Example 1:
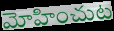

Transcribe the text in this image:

మోహించుట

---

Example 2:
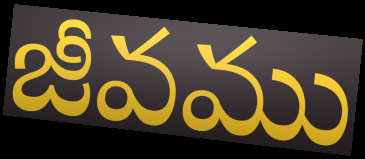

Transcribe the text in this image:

జీవము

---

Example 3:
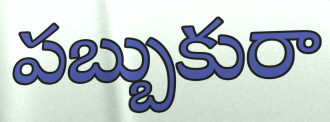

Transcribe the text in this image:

పబ్బుకురా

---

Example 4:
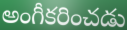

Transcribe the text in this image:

అంగీకరించడు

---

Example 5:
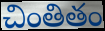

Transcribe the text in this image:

చింతితం